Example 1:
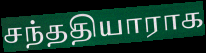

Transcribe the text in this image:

சந்ததியாராக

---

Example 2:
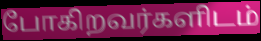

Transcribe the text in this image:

போகிறவர்களிடம்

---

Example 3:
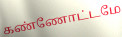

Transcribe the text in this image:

கண்ணோட்டமே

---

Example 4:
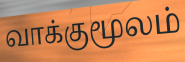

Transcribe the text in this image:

வாக்குமூலம்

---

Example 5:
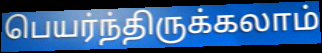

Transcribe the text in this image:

பெயர்ந்திருக்கலாம்